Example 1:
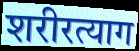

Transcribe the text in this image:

शरीरत्याग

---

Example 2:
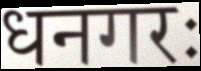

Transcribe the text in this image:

धनगरः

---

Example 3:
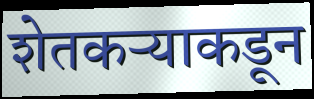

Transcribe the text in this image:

शेतकऱ्याकडून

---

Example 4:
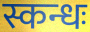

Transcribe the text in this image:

स्कन्धः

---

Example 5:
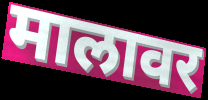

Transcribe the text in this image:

मालावर